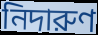
নিদারুণ